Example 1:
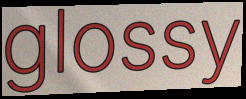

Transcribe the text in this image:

glossy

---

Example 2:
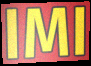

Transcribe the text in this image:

IMI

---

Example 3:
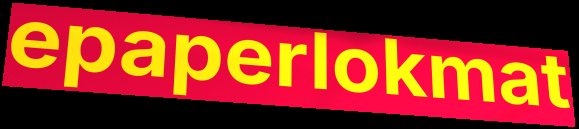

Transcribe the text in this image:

epaperlokmat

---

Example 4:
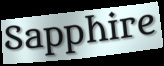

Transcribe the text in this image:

Sapphire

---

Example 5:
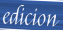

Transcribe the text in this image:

edicion